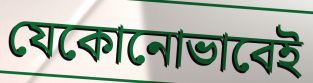
যেকোনোভাবেই